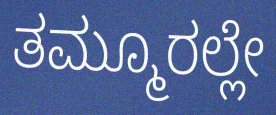
ತಮ್ಮೂರಲ್ಲೇ